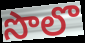
సొలొ